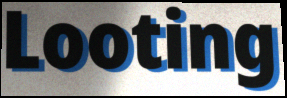
Looting